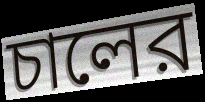
চালের